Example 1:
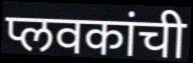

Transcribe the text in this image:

प्लवकांची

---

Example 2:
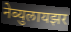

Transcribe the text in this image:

नेब्युलायझर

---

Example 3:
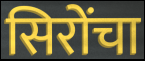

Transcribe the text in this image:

सिरोंचा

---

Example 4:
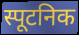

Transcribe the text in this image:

स्पूटनिक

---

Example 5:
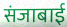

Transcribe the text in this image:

संजाबाई